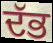
ਦੱਭ